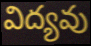
విద్యవు